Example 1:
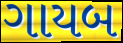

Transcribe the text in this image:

ગાયબ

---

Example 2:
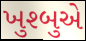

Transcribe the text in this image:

ખુશ્બુએ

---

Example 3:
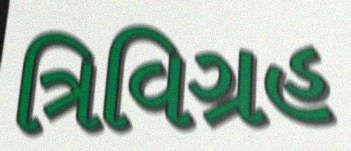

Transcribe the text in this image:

ત્રિવિગ્રહ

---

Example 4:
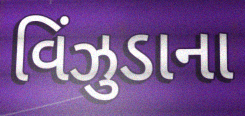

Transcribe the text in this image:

વિંઝુડાના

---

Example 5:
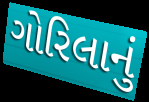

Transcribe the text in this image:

ગોરિલાનું